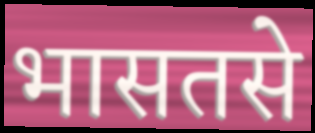
भासतसे